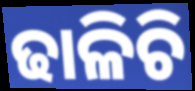
ଢାଳିଚି